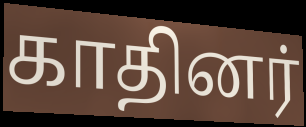
காதினர்